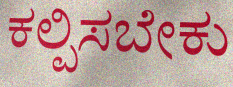
ಕಲ್ಪಿಸಬೇಕು